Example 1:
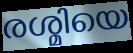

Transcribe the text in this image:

രശ്മിയെ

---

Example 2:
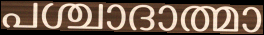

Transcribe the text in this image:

പശ്ചാദാത്മാ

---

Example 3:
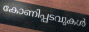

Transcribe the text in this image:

കോണിപ്പടവുകൾ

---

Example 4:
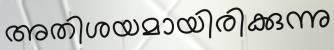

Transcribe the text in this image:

അതിശയമായിരിക്കുന്നു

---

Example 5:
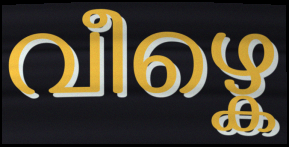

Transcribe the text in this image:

വീഴ്കെ